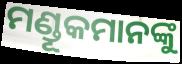
ମଣ୍ଡୂକମାନଙ୍କୁ